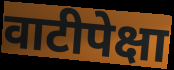
वाटीपेक्षा